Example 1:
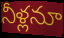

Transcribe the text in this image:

నీళ్లనూ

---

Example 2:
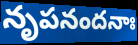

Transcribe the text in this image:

నృపనందనాః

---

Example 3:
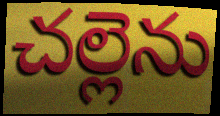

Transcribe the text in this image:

చల్లెను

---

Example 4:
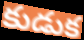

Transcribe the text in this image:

కుడుక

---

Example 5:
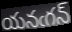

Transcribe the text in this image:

యనఁగన్